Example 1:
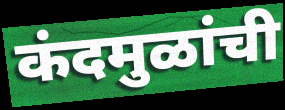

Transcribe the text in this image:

कंदमुळांची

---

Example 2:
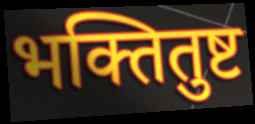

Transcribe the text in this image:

भक्तितुष्ट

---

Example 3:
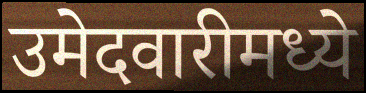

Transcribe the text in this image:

उमेदवारीमध्ये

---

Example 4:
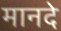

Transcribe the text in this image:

मानदे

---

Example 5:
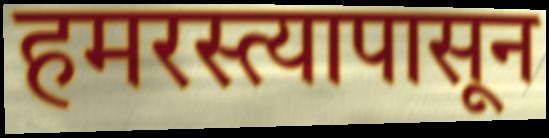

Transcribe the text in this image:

हमरस्त्यापासून